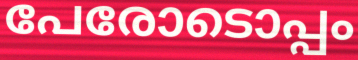
പേരോടൊപ്പം